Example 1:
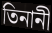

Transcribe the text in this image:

তিনানী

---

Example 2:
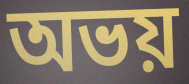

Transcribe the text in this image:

অভয়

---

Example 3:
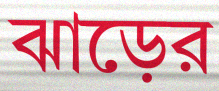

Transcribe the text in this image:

ঝাড়ের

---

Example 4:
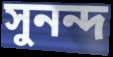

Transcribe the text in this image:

সুনন্দ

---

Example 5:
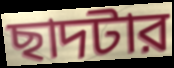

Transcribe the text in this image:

ছাদটার